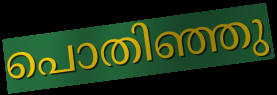
പൊതിഞ്ഞു